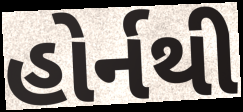
હોર્નથી